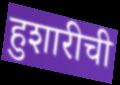
हुशारीची